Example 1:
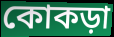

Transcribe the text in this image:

কোকড়া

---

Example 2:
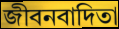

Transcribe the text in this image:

জীবনবাদিতা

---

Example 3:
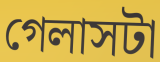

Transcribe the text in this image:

গেলাসটা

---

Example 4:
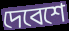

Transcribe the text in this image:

দেবেশে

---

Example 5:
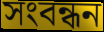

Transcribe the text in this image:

সংবন্ধন